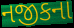
નજીકના